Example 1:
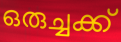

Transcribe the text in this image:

ഒരുച്ചക്ക്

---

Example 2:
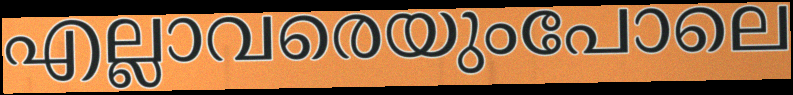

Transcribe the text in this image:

എല്ലാവരെയുംപോലെ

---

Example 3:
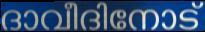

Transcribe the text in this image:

ദാവീദിനോട്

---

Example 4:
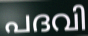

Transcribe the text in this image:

പദവി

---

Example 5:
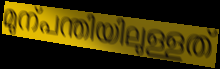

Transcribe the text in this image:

മുന്പന്തിയിലുള്ളത്